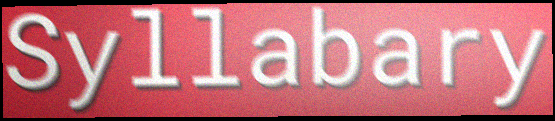
Syllabary